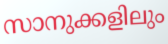
സാനുക്കളിലും